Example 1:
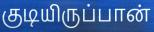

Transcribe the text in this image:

குடியிருப்பான்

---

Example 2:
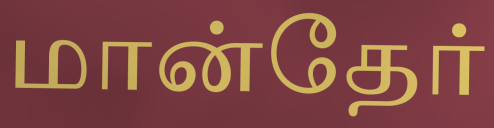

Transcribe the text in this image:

மான்தேர்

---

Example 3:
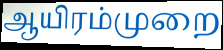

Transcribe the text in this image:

ஆயிரம்முறை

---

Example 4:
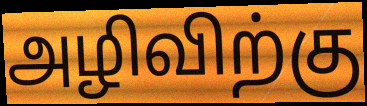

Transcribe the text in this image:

அழிவிற்கு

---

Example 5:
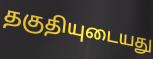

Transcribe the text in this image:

தகுதியுடையது